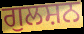
ਗੁਲਸ਼ਨ